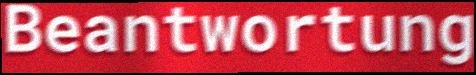
Beantwortung